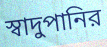
স্বাদুপানির